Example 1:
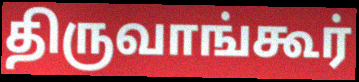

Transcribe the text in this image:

திருவாங்கூர்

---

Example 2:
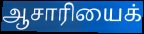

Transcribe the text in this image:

ஆசாரியைக்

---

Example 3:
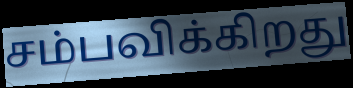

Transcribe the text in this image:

சம்பவிக்கிறது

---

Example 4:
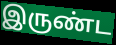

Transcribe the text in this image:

இருண்ட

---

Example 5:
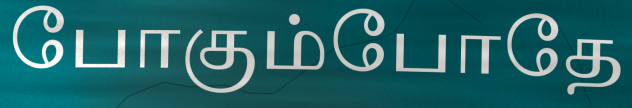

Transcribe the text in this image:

போகும்போதே